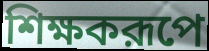
শিক্ষকরূপে